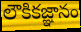
లౌకికజ్ఞానం